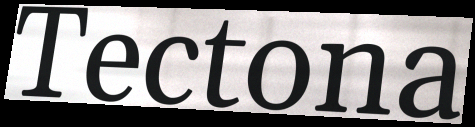
Tectona